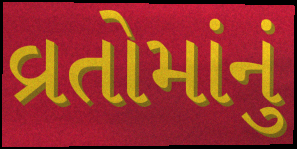
વ્રતોમાંનું